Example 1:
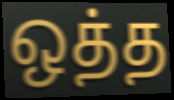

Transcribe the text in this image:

ஒத்த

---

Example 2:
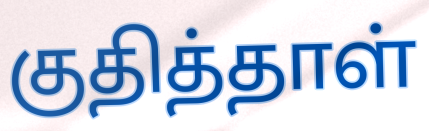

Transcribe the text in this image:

குதித்தாள்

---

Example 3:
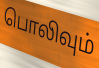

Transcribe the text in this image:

பொலிவும்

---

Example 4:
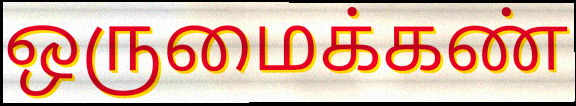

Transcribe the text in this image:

ஒருமைக்கண்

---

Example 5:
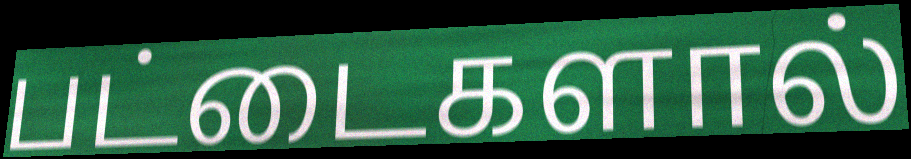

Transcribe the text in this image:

பட்டைகளால்